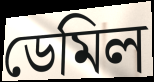
ডেমিল